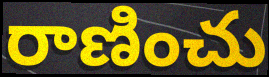
రాణించు